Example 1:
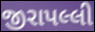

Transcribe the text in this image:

જીરાપલ્લી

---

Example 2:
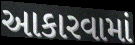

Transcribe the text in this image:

આકારવામાં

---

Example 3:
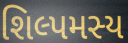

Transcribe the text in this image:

શિલ્પમસ્ય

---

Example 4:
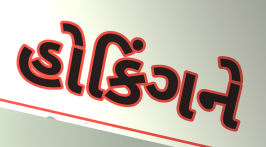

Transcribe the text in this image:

હોકિંગને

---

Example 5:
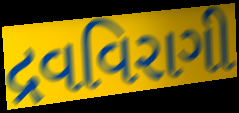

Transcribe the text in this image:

દ્રવવિરાગી